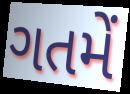
ગતમેં